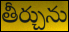
తీర్చును